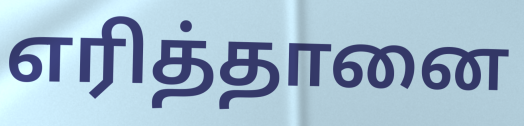
எரித்தானை